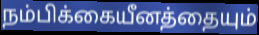
நம்பிக்கையீனத்தையும்